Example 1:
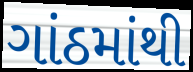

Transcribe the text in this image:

ગાંઠમાંથી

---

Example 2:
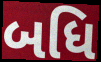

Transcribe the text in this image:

બધિ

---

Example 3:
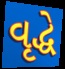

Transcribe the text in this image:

વૃદ્ધે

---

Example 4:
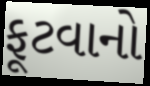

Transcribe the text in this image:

ફૂટવાનો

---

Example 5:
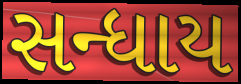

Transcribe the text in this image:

સન્ધાય